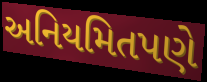
અનિયમિતપણે